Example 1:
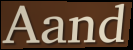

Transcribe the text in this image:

Aand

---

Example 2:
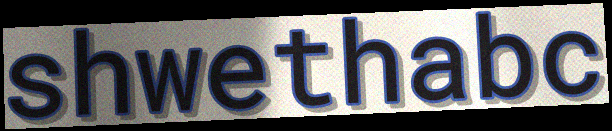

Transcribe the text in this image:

shwethabc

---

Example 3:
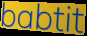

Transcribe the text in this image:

babtit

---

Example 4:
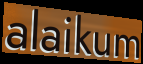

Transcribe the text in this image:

alaikum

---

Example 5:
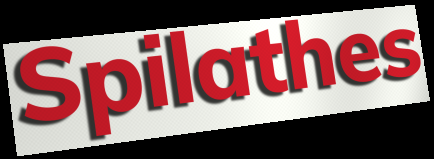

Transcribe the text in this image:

Spilathes